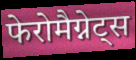
फेरोमैग्नेट्स